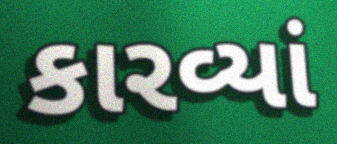
કારવ્યાં